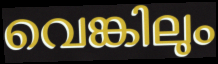
വെങ്കിലും